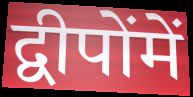
द्वीपोंमें